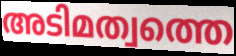
അടിമത്വത്തെ